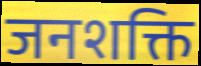
जनशक्ति